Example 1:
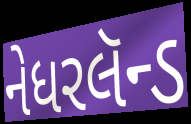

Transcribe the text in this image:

નેધરલૅન્ડ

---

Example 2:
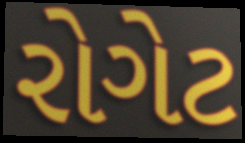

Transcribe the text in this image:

રોગેટ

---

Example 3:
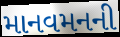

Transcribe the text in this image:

માનવમનની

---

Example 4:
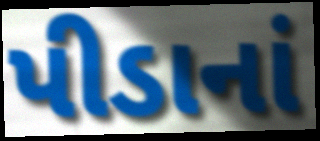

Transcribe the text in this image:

પીડાનાં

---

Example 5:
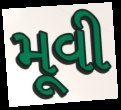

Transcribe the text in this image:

મૂવી